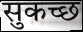
सुकच्छ